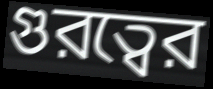
গুরত্বের